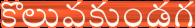
కొలువకుండగ